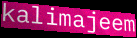
kalimajeem